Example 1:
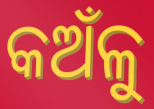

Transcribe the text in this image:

କଅଁଳୁ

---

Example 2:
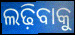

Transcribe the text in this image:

ଲଢ଼ିବାକୁ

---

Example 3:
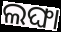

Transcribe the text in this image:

ଲଙ୍ଘା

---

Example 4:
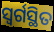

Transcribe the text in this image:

ସ୍ୱର୍ଗସ୍ଥିତ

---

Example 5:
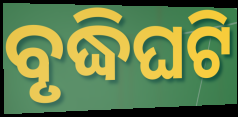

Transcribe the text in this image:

ବୃଦ୍ଧିଘଟି